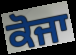
ਕੋਜਾ